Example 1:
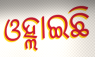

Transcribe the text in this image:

ଓହ୍ଲାଇଛି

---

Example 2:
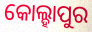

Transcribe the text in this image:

କୋଲ୍ହାପୁର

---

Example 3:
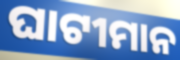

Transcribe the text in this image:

ଘାଟୀମାନ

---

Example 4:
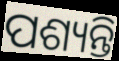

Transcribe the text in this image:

ପଶ୍ୟନ୍ତି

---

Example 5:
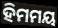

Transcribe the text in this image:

ହିମମୟ